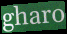
gharo